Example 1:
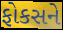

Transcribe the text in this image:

ફોકસને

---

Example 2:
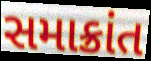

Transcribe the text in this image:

સમાક્રાંત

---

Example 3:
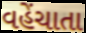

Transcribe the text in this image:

વહેંચાતા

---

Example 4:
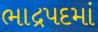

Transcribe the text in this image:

ભાદ્રપદમાં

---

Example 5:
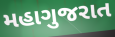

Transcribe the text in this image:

મહાગુજરાત